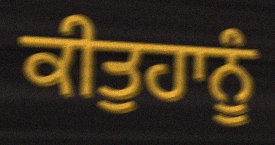
ਕੀਤੁਹਾਨੂੰ